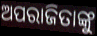
ଅପରାଜିତାଙ୍କୁ